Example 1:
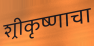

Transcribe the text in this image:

श्रीकृष्णाचा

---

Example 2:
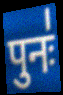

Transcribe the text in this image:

पुनः॑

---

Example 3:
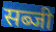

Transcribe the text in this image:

सब्जी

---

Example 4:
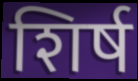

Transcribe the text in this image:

शिर्ष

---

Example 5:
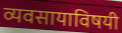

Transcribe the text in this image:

व्यवसायाविषयी